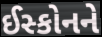
ઈસ્કોનને